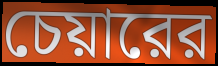
চেয়ারের